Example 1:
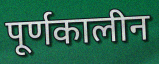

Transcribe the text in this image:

पूर्णकालीन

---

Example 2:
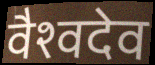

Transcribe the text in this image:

वैश्वदेव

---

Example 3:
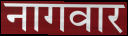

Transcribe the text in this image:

नागवार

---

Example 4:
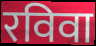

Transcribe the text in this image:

रविवा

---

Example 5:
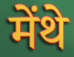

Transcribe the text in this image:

मेंथे